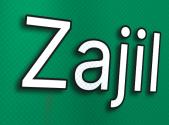
Zajil